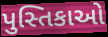
પુસ્તિકાઓ